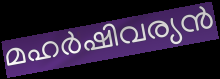
മഹർഷിവര്യൻ